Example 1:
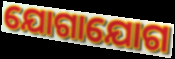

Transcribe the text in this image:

ଯୋଗାଯୋଗ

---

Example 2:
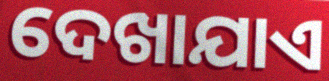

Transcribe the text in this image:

ଦେଖାଯାଏ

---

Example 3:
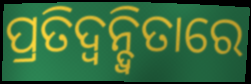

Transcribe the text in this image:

ପ୍ରତିଦ୍ୱନ୍ଦ୍ବିତାରେ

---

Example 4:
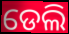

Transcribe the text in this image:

ଡେଲି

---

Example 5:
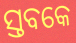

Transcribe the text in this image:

ସ୍ତବକେ